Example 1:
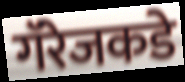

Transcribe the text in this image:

गॅरेजकडे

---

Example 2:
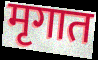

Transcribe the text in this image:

मृगात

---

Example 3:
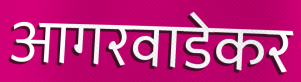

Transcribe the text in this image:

आगरवाडेकर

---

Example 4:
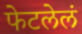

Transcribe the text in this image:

फेटलेलं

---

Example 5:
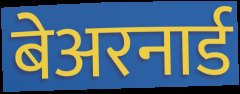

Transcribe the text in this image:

बेअरनार्ड